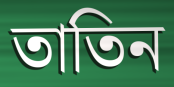
তাতিন